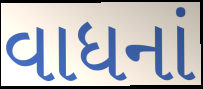
વાધનાં